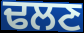
ਢਲਣ